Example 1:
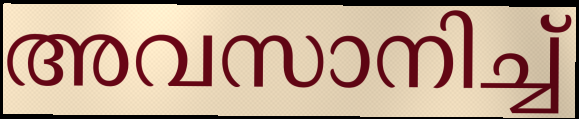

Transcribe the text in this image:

അവസാനിച്ച്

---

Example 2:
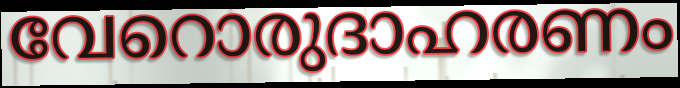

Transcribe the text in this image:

വേറൊരുദാഹരണം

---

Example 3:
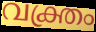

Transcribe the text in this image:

വക്ത്രം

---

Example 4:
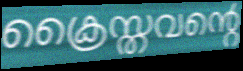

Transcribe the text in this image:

ക്രൈസ്തവന്റെ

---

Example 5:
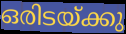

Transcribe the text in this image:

ഒരിടയ്ക്കു